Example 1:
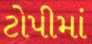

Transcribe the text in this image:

ટોપીમાં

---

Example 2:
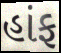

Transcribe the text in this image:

હાંફ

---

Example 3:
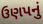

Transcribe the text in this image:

ઉણપનું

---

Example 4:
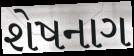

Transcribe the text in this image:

શેષનાગ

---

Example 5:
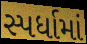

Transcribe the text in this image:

સ્પર્ધામાં